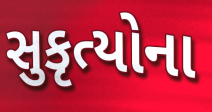
સુકૃત્યોના